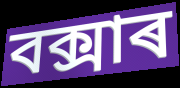
বক্সাৰ